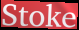
Stoke